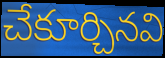
చేకూర్చినవి